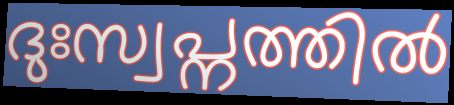
ദുഃസ്വപ്നത്തിൽ